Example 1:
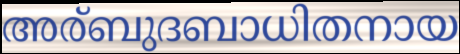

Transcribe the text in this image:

അര്ബുദബാധിതനായ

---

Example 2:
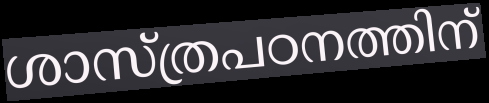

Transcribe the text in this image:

ശാസ്ത്രപഠനത്തിന്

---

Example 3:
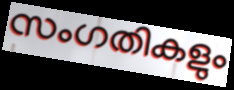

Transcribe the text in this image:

സംഗതികളും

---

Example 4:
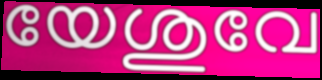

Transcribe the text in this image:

യേശുവേ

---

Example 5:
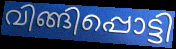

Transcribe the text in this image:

വിങ്ങിപ്പൊട്ടി